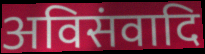
अविसंवादि